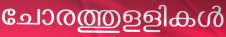
ചോരത്തുളളികൾ